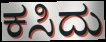
ಕಸಿದು